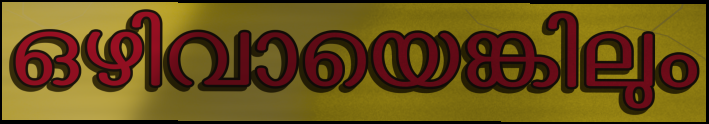
ഒഴിവായെങ്കിലും